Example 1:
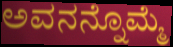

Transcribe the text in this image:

ಅವನನ್ನೊಮ್ಮೆ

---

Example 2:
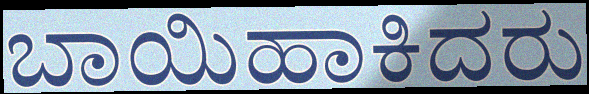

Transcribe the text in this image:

ಬಾಯಿಹಾಕಿದರು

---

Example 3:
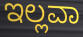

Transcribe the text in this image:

ಇಲ್ಲವಾ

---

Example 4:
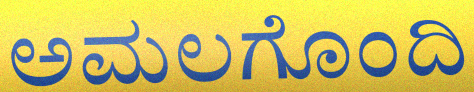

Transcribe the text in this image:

ಅಮಲಗೊಂದಿ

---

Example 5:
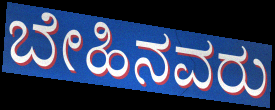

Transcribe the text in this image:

ಬೇಹಿನವರು